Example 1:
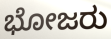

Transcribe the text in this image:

ಭೋಜರು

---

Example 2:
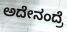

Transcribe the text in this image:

ಅದೇನಂದ್ರೆ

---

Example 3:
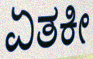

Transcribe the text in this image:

ಏತಕೀ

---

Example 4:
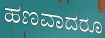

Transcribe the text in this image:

ಹಣವಾದರೂ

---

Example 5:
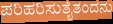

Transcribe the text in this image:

ಪರಿಹರಿಸುತೈತಂದನು